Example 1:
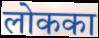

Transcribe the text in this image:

लोकका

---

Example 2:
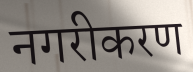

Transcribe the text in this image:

नगरीकरण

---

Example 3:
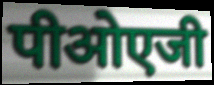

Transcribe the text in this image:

पीओएजी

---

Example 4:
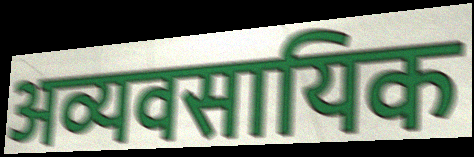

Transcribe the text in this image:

अव्यवसायिक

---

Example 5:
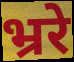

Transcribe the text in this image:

भ्ररे